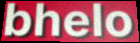
bhelo